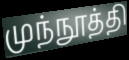
முந்நூத்தி